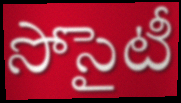
సోసైటీ